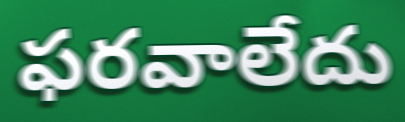
ఫరవాలేదు